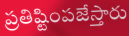
ప్రతిష్టింపజేస్తారు